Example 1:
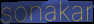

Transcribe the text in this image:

sonakar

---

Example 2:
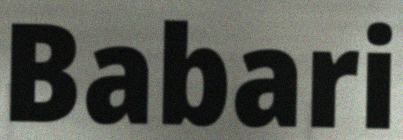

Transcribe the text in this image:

Babari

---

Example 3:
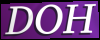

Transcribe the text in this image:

DOH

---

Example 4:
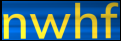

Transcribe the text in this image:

nwhf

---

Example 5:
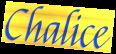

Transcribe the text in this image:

Chalice